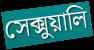
সেক্সুয়ালি